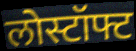
लोस्टॉफ्ट